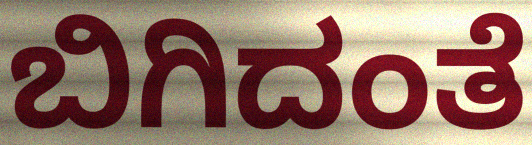
ಬಿಗಿದಂತೆ